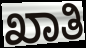
ಖಾತಿ